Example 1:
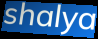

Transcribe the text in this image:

shalya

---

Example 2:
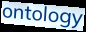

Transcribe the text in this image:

ontology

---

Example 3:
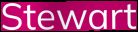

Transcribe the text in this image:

Stewart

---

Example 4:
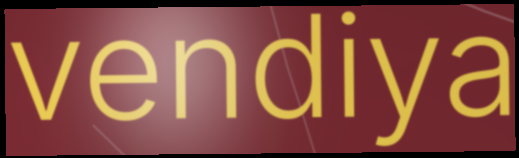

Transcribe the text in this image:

vendiya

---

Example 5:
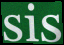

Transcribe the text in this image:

sis